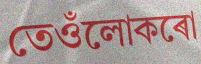
তেওঁলোকৰো